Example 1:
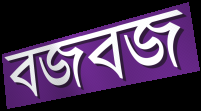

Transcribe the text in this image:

বজবজ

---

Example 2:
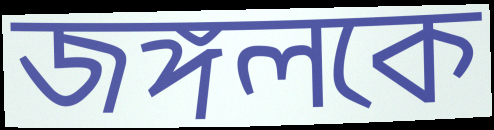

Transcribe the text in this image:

জঙ্গলকে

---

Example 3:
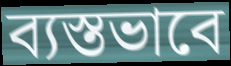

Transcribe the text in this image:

ব্যস্তভাবে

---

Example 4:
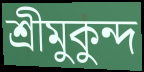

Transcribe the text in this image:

শ্রীমুকুন্দ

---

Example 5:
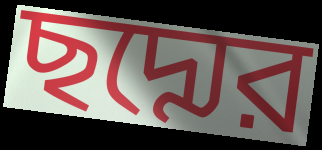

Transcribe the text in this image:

ছদ্মের